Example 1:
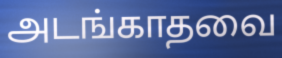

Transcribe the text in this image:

அடங்காதவை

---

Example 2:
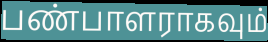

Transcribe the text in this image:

பண்பாளராகவும்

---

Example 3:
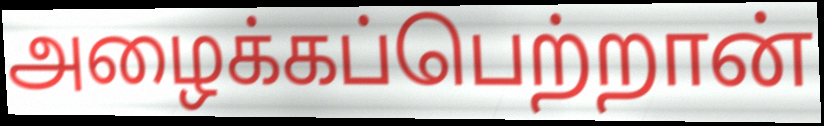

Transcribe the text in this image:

அழைக்கப்பெற்றான்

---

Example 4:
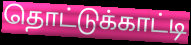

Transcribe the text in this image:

தொட்டுக்காட்டி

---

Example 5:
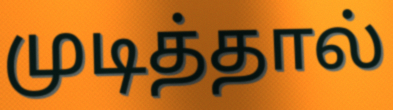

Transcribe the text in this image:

முடித்தால்